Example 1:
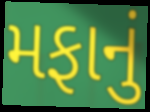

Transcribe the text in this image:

મફાનું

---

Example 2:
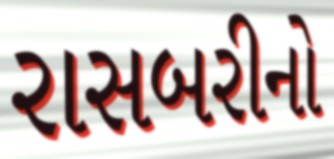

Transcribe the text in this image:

રાસબરીનો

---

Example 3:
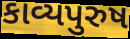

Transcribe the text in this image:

કાવ્યપુરુષ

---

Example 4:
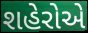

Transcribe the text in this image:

શહેરોએ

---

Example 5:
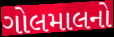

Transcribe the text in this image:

ગોલમાલનો